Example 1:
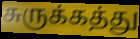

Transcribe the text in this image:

சுருக்கத்து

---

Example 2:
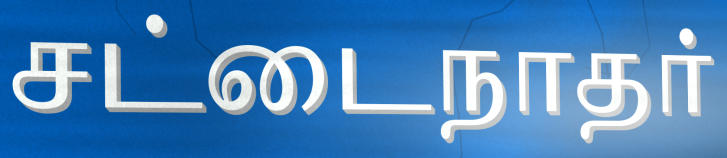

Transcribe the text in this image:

சட்டைநாதர்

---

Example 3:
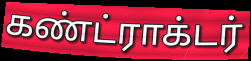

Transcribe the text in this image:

கண்ட்ராக்டர்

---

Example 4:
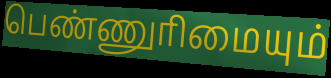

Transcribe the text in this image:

பெண்ணுரிமையும்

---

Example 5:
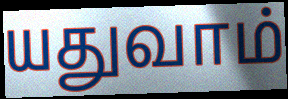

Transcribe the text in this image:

யதுவாம்